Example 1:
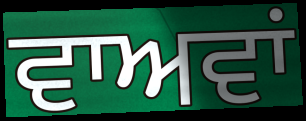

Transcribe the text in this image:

ਵਾਅਵਾਂ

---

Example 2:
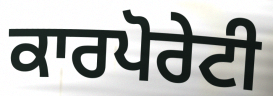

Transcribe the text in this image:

ਕਾਰਪੋਰੇਟੀ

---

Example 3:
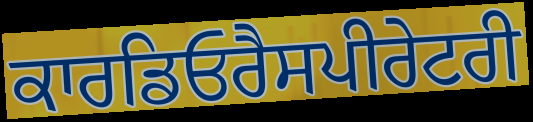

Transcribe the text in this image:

ਕਾਰਡਿਓਰੈਸਪੀਰੇਟਰੀ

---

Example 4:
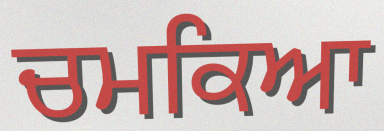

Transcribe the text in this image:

ਚਮਕਿਆ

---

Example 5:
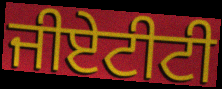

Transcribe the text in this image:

ਜੀਏਟੀਟੀ